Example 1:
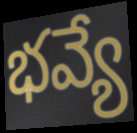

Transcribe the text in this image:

భవ్యే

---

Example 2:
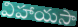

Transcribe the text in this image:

విహాయసా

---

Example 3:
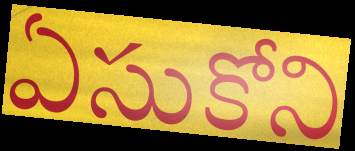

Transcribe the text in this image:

ఏసుకోని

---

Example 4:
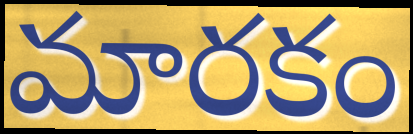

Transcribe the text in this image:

మారకం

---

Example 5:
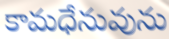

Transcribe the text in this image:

కామధేనువును